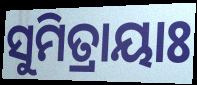
ସୁମିତ୍ରାୟାଃ